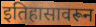
इतिहासावरून